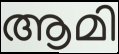
ആമി